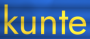
kunte